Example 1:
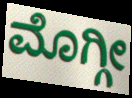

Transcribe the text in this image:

ಮೊಗ್ಗೀ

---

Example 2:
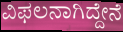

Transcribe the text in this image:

ವಿಫಲನಾಗಿದ್ದೇನೆ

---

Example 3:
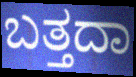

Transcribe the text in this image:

ಬತ್ತದಾ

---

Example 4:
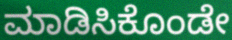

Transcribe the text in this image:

ಮಾಡಿಸಿಕೊಂಡೇ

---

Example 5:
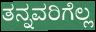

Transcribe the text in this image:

ತನ್ನವರಿಗೆಲ್ಲ